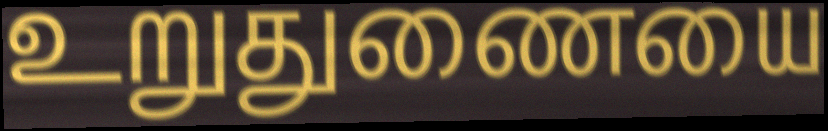
உறுதுணையை